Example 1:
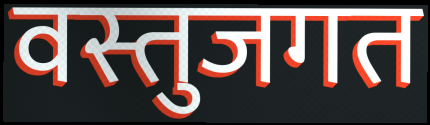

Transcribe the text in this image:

वस्तुजगत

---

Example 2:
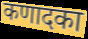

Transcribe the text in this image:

कणादका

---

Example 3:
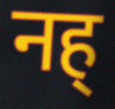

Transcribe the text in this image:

नह्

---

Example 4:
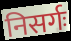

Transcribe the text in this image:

निसर्गः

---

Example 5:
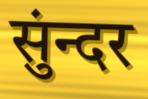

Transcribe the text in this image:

सुंन्दर